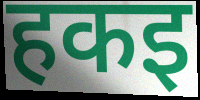
हकइ